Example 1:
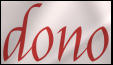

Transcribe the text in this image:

dono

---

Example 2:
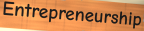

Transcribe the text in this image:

Entrepreneurship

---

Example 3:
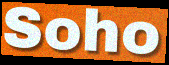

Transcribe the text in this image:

Soho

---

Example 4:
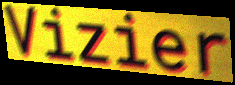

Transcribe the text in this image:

Vizier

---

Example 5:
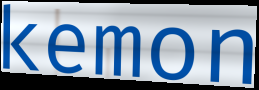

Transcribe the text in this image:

kemon